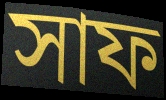
সাফ